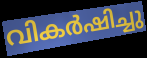
വികർഷിച്ചു